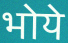
भोये